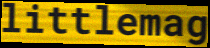
littlemag